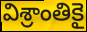
విశ్రాంతికై